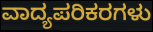
ವಾದ್ಯಪರಿಕರಗಳು